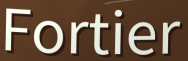
Fortier